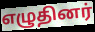
எழுதினர்